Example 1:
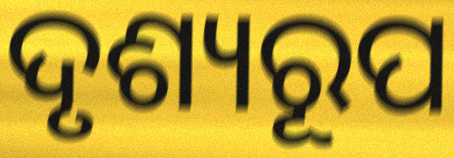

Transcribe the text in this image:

ଦୃଶ୍ୟରୂପ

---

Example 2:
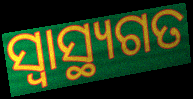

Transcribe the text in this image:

ସ୍ବାସ୍ଥ୍ୟଗତ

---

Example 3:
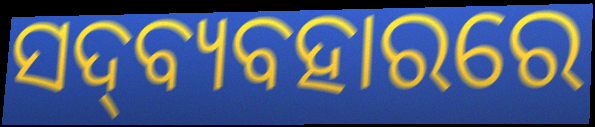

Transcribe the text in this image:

ସଦ୍‍ବ୍ୟବହାରରେ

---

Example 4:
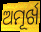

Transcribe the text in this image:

ଅମୂର୍ଖ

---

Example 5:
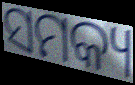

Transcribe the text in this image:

ସମକ୍ୟ